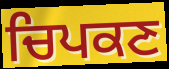
ਚਿਪਕਣ